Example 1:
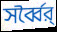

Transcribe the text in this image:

সর্ব্বৈর্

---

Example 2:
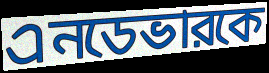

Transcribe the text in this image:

এনডেভারকে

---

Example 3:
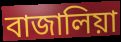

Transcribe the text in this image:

বাজালিয়া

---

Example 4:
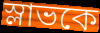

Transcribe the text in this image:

স্লাভকে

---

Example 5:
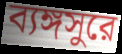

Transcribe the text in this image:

ব্যঙ্গসুরে